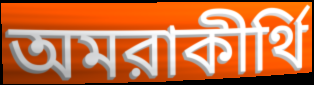
অমরাকীর্থি